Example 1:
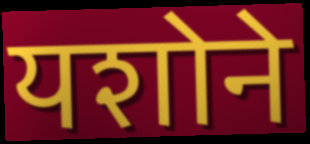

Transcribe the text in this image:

यशोने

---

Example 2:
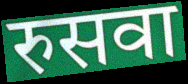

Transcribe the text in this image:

रुसवा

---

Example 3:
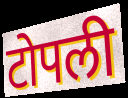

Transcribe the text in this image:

टोपली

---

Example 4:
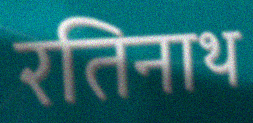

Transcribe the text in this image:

रतिनाथ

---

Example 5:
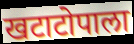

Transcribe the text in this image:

खटाटोपाला